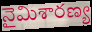
నైమిశారణ్య